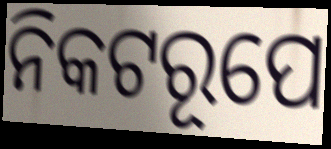
ନିକଟରୂପେ